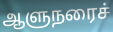
ஆளுநரைச்